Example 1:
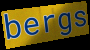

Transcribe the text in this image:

bergs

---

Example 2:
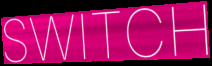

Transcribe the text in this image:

SWITCH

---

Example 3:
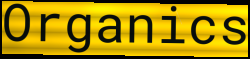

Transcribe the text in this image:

Organics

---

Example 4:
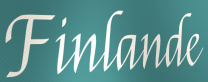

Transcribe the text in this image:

Finlande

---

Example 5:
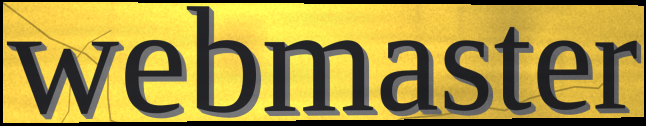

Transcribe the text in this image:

webmaster